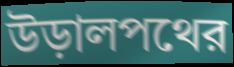
উড়ালপথের